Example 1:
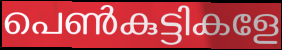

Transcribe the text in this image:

പെൺകുട്ടികളേ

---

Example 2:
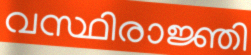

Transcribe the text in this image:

വസ്ഥിരാജ്ഞി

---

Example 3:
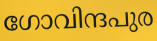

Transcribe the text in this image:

ഗോവിന്ദപുര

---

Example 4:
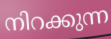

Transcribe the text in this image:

നിറക്കുന്ന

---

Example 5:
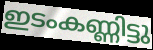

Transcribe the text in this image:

ഇടംകണ്ണിട്ടു